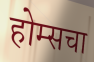
होम्सचा